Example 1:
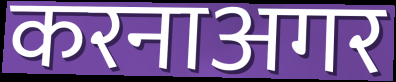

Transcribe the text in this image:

करनाअगर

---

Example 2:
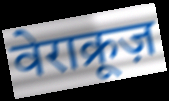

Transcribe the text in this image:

वेराक्रूज़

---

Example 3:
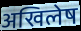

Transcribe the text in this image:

अखिलेष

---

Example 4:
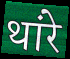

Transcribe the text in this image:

थांरे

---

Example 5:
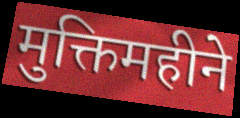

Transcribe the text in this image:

मुक्तिमहीने